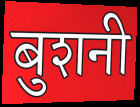
बुशनी